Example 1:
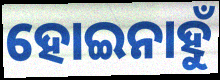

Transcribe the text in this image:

ହୋଇନାହୁଁ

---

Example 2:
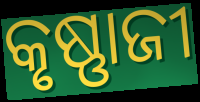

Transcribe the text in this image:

କୃଷ୍ଣାଜୀ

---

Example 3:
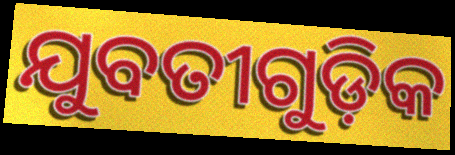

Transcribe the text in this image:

ଯୁବତୀଗୁଡ଼ିକ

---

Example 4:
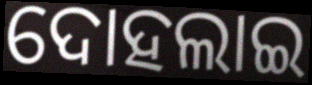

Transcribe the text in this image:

ଦୋହଲାଇ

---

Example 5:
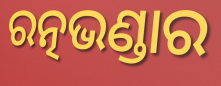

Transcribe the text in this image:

ରତ୍ନଭଣ୍ଡାର